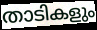
താടികളും